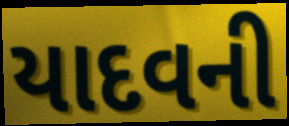
યાદવની